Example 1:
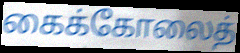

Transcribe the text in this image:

கைக்கோலைத்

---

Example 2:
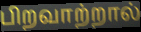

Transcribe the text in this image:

பிறவாற்றால்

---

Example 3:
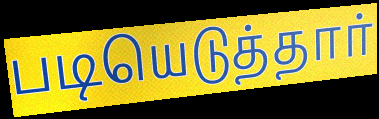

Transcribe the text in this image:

படியெடுத்தார்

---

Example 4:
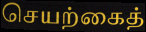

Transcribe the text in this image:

செயற்கைத்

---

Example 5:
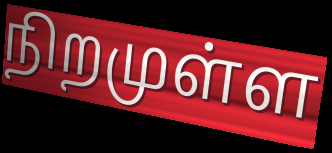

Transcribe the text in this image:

நிறமுள்ள